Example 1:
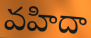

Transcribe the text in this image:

వహిదా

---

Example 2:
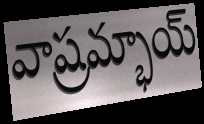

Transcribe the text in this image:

వాష్రమ్భాయ్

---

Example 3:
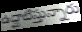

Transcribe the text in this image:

ఉద్ఘాటిస్తున్నారు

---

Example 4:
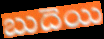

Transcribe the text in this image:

బుదెయి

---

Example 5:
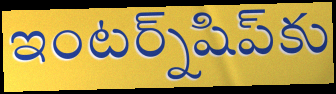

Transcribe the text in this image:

ఇంటర్న్‌షిప్‌కు